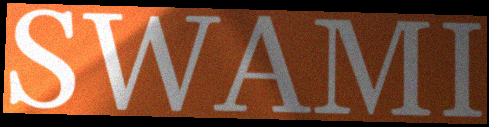
SWAMI